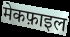
मेकफ़ाइल